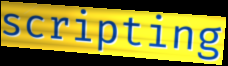
scripting